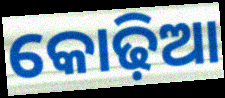
କୋଢ଼ିଆ